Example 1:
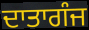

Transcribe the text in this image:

ਦਾਤਾਗੰਜ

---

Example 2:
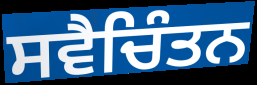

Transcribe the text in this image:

ਸਵੈਚਿੰਤਨ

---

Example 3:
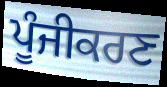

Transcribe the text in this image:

ਪੂੰਜੀਕਰਣ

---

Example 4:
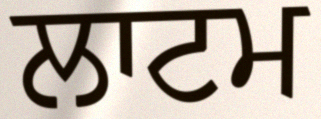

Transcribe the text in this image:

ਲਾਟਮ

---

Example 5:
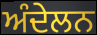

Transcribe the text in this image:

ਅੰਦੇਲਨ